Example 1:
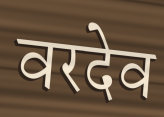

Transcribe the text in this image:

वरदेव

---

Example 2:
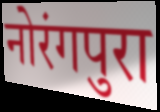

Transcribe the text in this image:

नोरंगपुरा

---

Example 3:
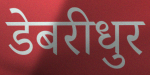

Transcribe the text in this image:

डेबरीधुर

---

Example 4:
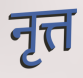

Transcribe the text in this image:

नृत्त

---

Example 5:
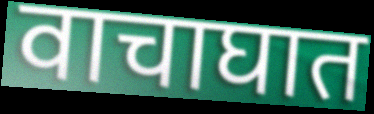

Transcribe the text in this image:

वाचाघात